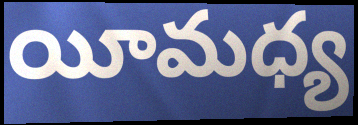
యీమధ్య